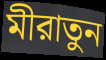
মীরাতুন